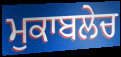
ਮੁਕਾਬਲੇਚ